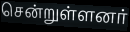
சென்றுள்ளனர்